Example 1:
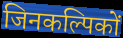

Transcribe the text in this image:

जिनकल्पिकों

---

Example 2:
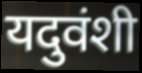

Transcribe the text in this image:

यदुवंशी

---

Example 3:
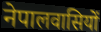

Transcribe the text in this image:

नेपालवासियों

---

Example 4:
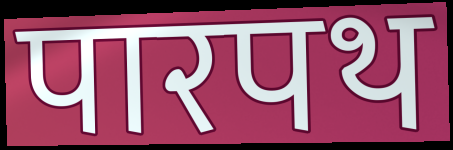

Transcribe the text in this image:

पारपथ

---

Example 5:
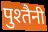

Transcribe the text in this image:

पुश्‍तैनी